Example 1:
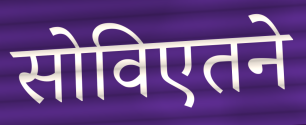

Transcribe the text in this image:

सोविएतने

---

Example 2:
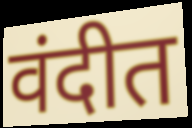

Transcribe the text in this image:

वंदीत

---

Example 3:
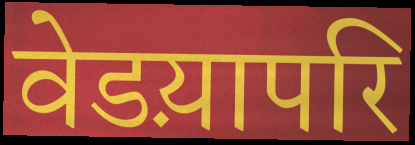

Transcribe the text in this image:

वेडय़ापरि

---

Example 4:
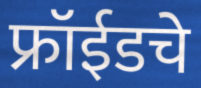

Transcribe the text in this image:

फ्रॉईडचे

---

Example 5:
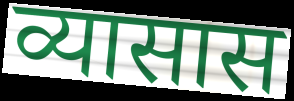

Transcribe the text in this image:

व्यासास